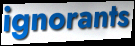
ignorants